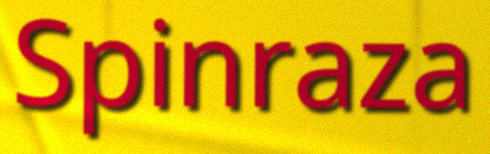
Spinraza